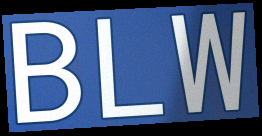
BLW